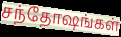
சந்தோஷங்கள்